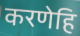
करणेहि